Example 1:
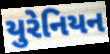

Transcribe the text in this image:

યુરેનિયન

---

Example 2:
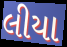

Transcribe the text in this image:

લીયા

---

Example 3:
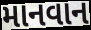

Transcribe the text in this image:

માનવાન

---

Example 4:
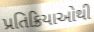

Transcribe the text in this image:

પ્રતિક્રિયાઓથી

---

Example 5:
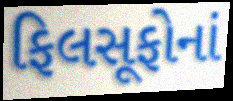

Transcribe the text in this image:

ફિલસૂફોનાં